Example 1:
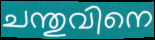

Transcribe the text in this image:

ചന്തുവിനെ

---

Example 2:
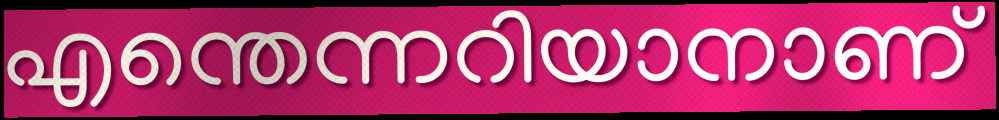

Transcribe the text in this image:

എന്തെന്നറിയാനാണ്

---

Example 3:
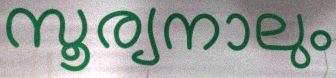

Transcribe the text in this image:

സൂര്യനാലും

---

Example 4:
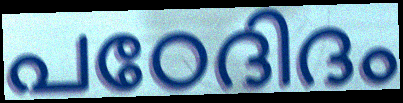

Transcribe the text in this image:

പഠേദിദം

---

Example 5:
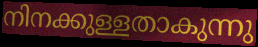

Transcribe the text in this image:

നിനക്കുള്ളതാകുന്നു